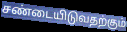
சண்டையிடுவதற்கும்